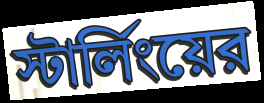
স্টার্লিংয়ের